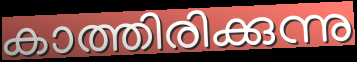
കാത്തിരിക്കുന്നു